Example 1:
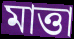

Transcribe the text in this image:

মাত্তা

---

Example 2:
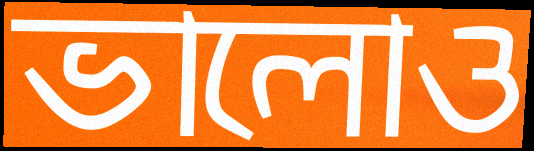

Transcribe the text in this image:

ভালোও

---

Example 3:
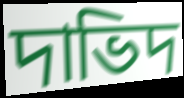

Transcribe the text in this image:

দাভিদ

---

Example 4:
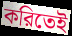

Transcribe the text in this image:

করিতেই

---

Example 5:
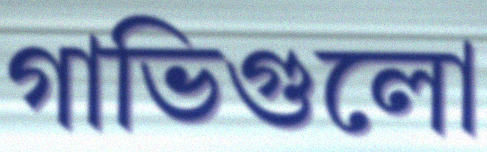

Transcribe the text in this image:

গাভিগুলো